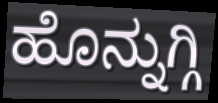
ಹೊನ್ನುಗ್ಗಿ